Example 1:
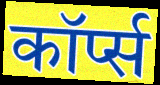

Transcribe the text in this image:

कॉर्प्स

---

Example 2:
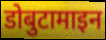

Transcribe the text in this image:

डोबुटामाइन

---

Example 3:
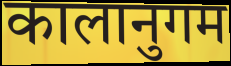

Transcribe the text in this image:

कालानुगम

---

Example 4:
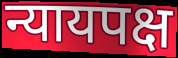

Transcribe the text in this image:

न्यायपक्ष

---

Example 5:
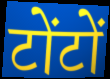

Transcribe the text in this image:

टोंटों